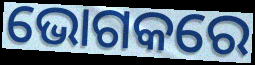
ଭୋଗକରେ